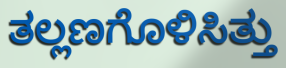
ತಲ್ಲಣಗೊಳಿಸಿತ್ತು